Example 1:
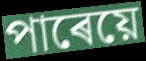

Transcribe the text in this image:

পাৰেয়ে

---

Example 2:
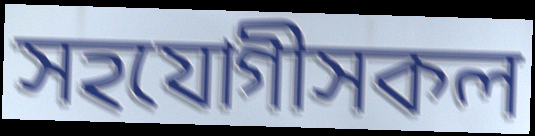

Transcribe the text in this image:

সহযোগীসকল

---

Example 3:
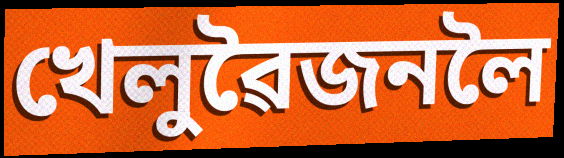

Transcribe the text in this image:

খেলুৱৈজনলৈ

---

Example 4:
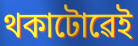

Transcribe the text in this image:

থকাটোৱেই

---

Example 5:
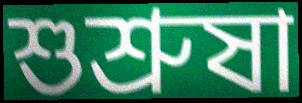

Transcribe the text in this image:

শুশ্ৰুষা